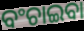
ବଂଚାଇବା